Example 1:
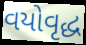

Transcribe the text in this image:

વયોવૃદ્ધ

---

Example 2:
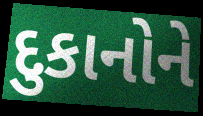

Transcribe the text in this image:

દુકાનોને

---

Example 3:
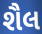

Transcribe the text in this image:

શૈલ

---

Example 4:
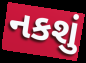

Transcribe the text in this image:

નકશું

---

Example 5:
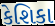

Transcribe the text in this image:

કેશિકા